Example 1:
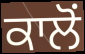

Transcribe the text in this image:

ਕਾਲੋਂ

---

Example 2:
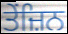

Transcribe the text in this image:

ਤੇਂਜ਼ਿਨ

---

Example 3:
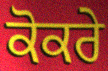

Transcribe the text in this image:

ਕੋਕਰੇ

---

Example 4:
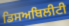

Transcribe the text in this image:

ਡਿਸਅਬਿਲੀਟੀ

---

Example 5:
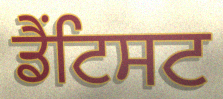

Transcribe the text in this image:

ਡੈਂਟਿਸਟ